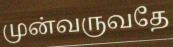
முன்வருவதே